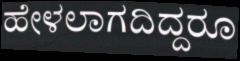
ಹೇಳಲಾಗದಿದ್ದರೂ